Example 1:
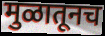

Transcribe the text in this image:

मुळातूनच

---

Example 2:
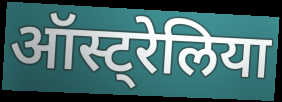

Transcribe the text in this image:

ऑस्ट्रेलिया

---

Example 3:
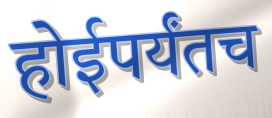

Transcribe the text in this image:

होईपर्यंतच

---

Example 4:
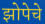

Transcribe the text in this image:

झोपेचे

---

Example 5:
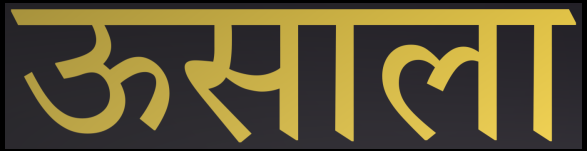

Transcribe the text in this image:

ऊसाला